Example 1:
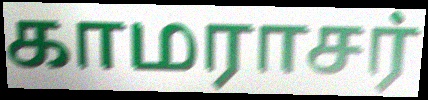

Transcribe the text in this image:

காமராசர்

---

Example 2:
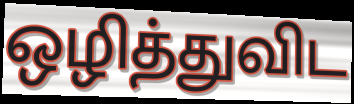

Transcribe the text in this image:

ஒழித்துவிட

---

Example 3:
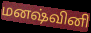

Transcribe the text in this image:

மனஷ்வினி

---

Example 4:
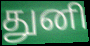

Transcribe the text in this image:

துனி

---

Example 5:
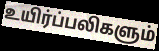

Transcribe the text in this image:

உயிர்ப்பலிகளும்